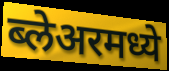
ब्लेअरमध्ये